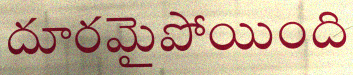
దూరమైపోయింది